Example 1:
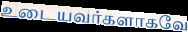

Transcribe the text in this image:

உடையவர்களாகவே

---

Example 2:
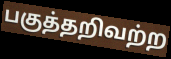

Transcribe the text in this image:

பகுத்தறிவற்ற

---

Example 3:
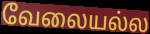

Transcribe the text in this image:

வேலையல்ல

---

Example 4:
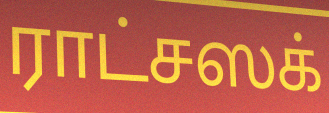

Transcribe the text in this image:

ராட்சஸக்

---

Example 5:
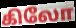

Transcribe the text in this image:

கிலோ